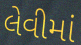
લેવીમાં